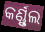
କର୍ଣ୍ଣୁଲ